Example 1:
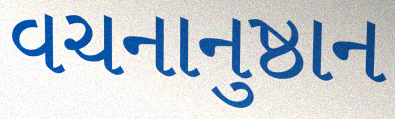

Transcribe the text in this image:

વચનાનુષ્ઠાન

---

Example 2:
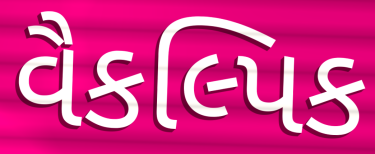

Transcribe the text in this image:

વૈકલ્પિક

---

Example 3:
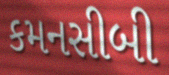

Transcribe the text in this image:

કમનસીબી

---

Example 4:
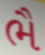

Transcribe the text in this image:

ભૈ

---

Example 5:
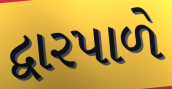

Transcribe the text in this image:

દ્વારપાળે